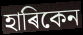
হাৰিকেন